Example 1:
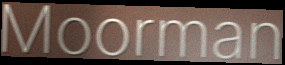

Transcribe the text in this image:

Moorman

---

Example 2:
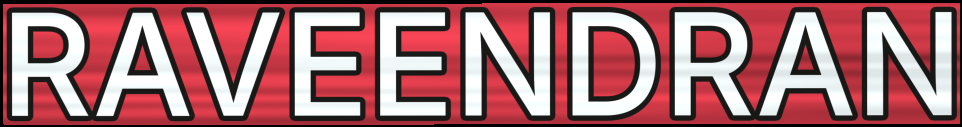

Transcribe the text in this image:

RAVEENDRAN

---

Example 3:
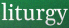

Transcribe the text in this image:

liturgy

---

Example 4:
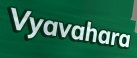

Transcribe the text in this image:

Vyavahara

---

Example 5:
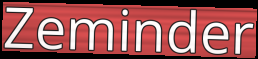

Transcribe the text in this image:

Zeminder